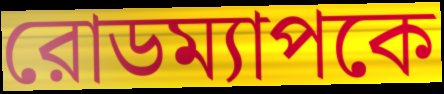
রোডম্যাপকে